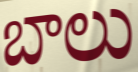
బాలు